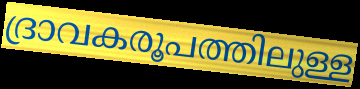
ദ്രാവകരൂപത്തിലുള്ള